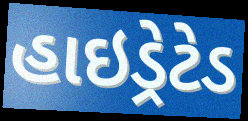
હાઇડ્રેટેડ